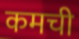
कमची